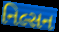
નિલ્સન